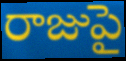
రాజుపై